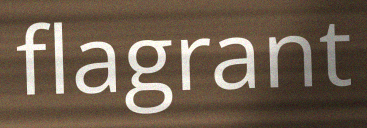
flagrant